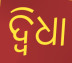
ଦ୍ବିଧା